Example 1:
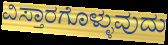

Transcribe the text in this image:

ವಿಸ್ತಾರಗೊಳ್ಳುವುದು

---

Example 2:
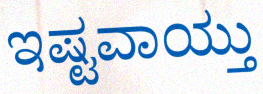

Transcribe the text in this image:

ಇಷ್ಟವಾಯ್ತು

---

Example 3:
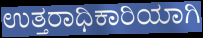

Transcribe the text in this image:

ಉತ್ತರಾಧಿಕಾರಿಯಾಗಿ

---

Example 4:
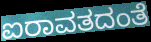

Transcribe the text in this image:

ಐರಾವತದಂತೆ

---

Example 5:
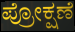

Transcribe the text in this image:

ಪ್ರೋಕ್ಷಣೆ